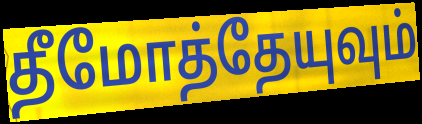
தீமோத்தேயுவும்